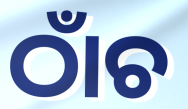
ଠାଁଚ